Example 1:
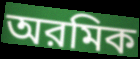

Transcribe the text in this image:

অরমিক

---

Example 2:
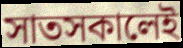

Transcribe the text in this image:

সাতসকালেই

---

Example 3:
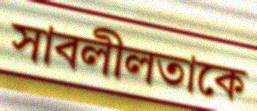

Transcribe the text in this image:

সাবলীলতাকে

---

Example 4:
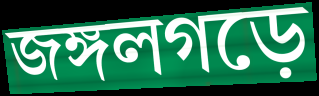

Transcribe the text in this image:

জঙ্গলগড়ে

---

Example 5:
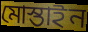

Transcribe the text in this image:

মোস্তাইন